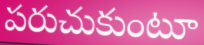
పరుచుకుంటూ